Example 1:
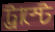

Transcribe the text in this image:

ট্রাস্টে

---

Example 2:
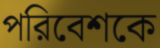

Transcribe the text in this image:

পরিবেশকে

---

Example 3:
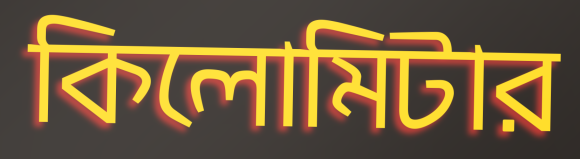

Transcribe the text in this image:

কিলোমিটার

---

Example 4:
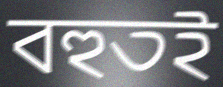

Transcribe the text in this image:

বহুতই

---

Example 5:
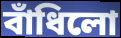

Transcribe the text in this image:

বাঁধিলো